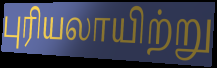
புரியலாயிற்று